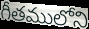
గీతములోని